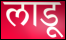
लाडू